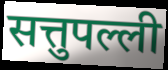
सत्तुपल्ली